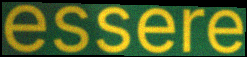
essere